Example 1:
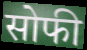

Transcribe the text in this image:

सोफी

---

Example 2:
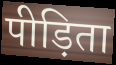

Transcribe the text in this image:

पीड़िता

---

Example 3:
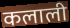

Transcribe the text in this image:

कलाली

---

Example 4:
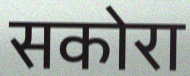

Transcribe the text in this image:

सकोरा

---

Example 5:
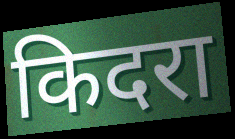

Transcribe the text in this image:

किदरा